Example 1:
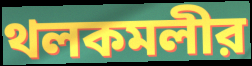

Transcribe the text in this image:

থলকমলীর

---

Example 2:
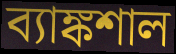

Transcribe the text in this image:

ব্যাঙ্কশাল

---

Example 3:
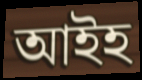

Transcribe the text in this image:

আইহ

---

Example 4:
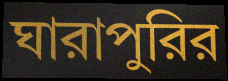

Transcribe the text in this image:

ঘারাপুরির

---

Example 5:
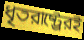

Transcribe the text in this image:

ধৃতরাষ্ট্রেরই